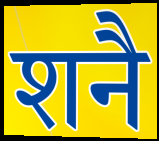
शनै